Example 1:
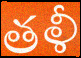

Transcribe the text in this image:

తళీ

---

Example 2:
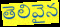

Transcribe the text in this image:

తెలివైన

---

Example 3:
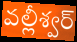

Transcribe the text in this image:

వల్లీశ్వర్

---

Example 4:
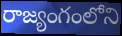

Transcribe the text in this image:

రాజ్యంగంలోని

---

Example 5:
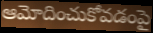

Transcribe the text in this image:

ఆమోదించుకోవడంపై